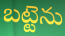
బట్టెను